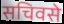
सचिवसे